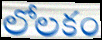
లోలకం